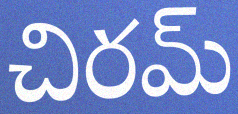
చిరమ్